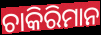
ଚାକିରିମାନ